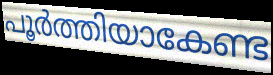
പൂർത്തിയാകേണ്ട